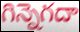
గిన్నెగదా